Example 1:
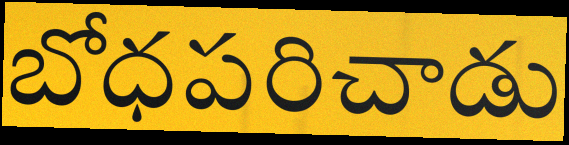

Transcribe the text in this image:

బోధపరిచాడు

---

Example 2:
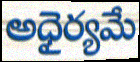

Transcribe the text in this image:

అధైర్యమే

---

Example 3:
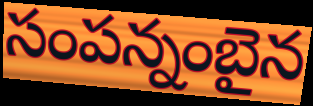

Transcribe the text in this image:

సంపన్నంబైన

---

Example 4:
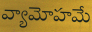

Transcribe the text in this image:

వ్యామోహమే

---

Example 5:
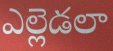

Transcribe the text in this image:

ఎల్లెడలా